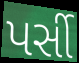
પર્સી